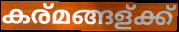
കര്മങ്ങള്ക്ക്